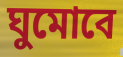
ঘুমোবে